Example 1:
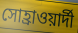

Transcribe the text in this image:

সোহ্রাওয়ার্দী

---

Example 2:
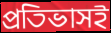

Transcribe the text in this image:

প্রতিভাসই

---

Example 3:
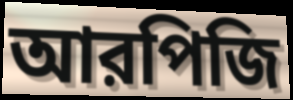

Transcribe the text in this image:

আরপিজি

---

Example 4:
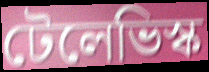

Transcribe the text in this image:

টেলেভিস্ক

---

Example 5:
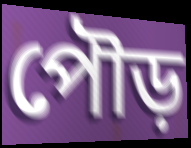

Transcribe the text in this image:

পৌড়